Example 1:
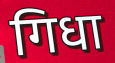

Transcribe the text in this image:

गिधा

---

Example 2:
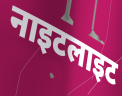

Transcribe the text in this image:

नाइटलाइट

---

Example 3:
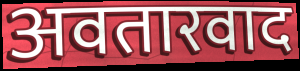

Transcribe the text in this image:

अवतारवाद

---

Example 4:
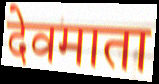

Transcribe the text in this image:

देवमाता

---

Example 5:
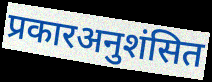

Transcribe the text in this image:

प्रकारअनुशंसित